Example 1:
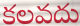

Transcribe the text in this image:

కలవదు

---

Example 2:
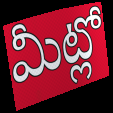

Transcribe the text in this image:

మీట్లో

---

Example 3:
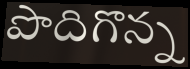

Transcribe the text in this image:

పొదిగొన్న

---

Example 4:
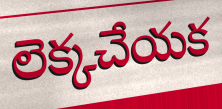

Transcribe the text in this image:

లెక్కచేయక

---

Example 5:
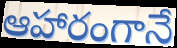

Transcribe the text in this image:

ఆహారంగానే